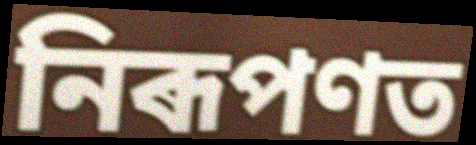
নিৰূপণত